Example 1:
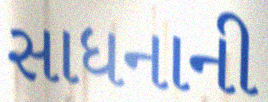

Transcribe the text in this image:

સાધનાની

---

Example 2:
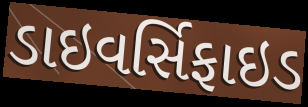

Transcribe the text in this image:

ડાઇવર્સિફાઇડ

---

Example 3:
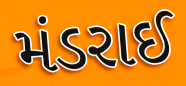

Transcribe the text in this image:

મંડરાઈ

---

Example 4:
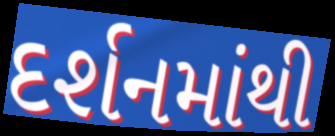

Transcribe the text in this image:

દર્શનમાંથી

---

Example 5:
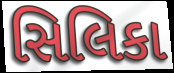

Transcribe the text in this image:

સિલિકા